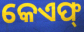
କେଏଫ୍